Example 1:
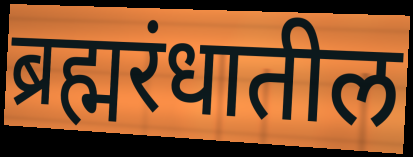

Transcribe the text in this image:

ब्रह्मरंधातील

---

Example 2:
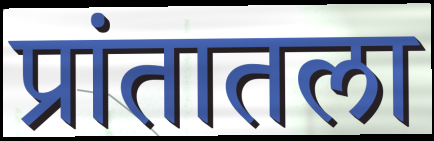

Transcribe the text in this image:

प्रांतातला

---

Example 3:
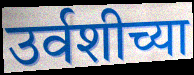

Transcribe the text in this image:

उर्वशीच्या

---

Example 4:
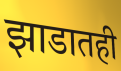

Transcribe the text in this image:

झाडातही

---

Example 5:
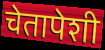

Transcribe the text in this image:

चेतापेशी